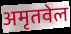
अमृतवेल